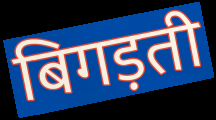
बिगड़ती